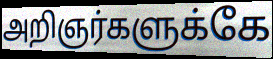
அறிஞர்களுக்கே